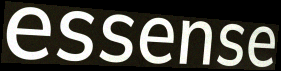
essense